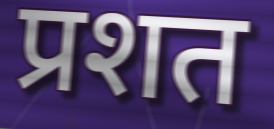
प्रशत